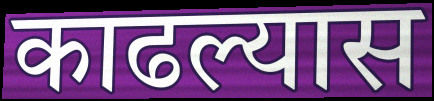
काढल्यास